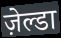
ज़ेल्डा